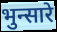
भुन्सारे